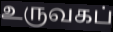
உருவகப்